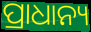
ପ୍ରାଧାନ୍ୟ